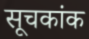
सूचकांक